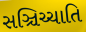
સઞ્ચિચ્ચાતિ